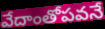
వేదాంతోపవనే